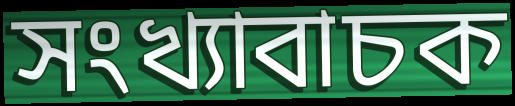
সংখ্যাবাচক